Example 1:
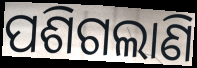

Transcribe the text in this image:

ପଶିଗଲାଣି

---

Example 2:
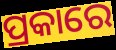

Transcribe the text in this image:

ପ୍ରକାରେ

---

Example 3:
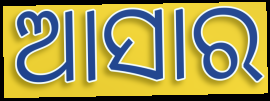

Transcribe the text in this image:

ଆସାର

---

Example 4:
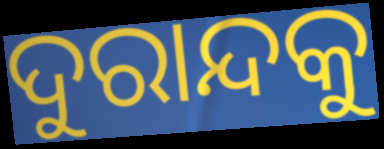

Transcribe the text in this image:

ଦୁରାନ୍ଦକୁ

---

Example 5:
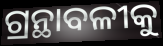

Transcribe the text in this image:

ଗ୍ରନ୍ଥାବଳୀକୁ